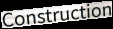
Construction